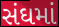
સંઘમાં